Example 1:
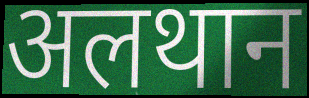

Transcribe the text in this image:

अलथान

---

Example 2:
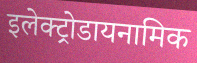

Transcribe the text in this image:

इलेक्ट्रोडायनामिक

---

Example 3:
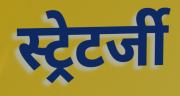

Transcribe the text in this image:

स्ट्रेटर्जी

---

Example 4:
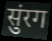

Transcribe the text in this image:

सुंरग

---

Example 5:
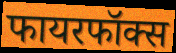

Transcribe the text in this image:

फायरफॉक्स